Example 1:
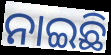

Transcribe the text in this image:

ନାଇଛି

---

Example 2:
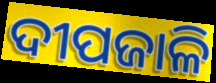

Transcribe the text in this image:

ଦୀପଜାଳି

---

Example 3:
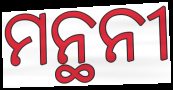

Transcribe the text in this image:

ମନ୍ଥନୀ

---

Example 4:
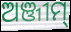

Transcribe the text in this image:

ଅଞ୍ଜୀମ୍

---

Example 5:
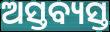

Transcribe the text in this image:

ଅସ୍ତବ୍ୟସ୍ତ